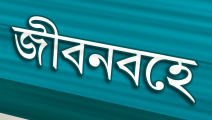
জীবনবহে